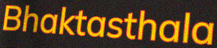
Bhaktasthala